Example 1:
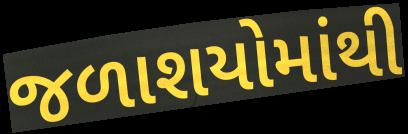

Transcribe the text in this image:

જળાશયોમાંથી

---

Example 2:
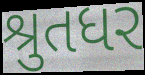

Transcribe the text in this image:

શ્રુતધર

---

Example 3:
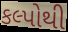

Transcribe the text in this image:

કલ્પોથી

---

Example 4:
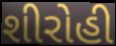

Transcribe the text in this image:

શીરોહી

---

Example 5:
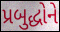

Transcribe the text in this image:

પ્રબુદ્ધોને